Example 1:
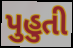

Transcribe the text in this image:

પુહુતી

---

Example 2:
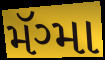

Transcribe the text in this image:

મૅગ્મા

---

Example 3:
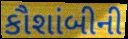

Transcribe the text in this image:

કૌશાંબીની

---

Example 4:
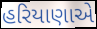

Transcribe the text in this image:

હરિયાણાએ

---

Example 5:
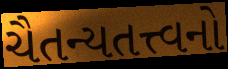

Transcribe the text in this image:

ચૈતન્યતત્ત્વનો